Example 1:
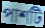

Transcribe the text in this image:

পাশটি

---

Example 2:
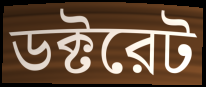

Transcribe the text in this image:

ডক্টরেট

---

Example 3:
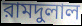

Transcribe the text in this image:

রামদুলাল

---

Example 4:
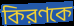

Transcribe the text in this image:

কিরণকে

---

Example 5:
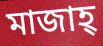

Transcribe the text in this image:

মাজাহ্